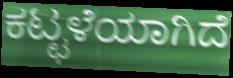
ಕಟ್ಟಳೆಯಾಗಿದೆ